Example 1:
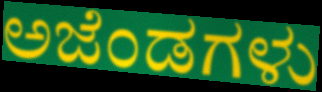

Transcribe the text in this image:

ಅಜೆಂಡಗಳು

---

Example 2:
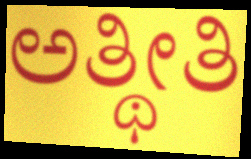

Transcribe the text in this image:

ಅತ್ಥೀತಿ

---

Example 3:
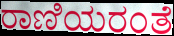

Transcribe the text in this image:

ರಾಣಿಯರಂತೆ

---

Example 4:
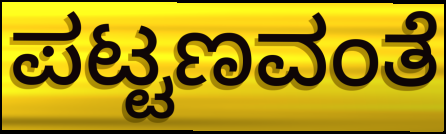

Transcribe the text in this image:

ಪಟ್ಟಣವಂತೆ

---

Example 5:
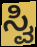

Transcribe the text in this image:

ಸ್ವಿ